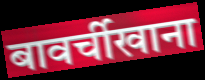
बावर्चीखाना